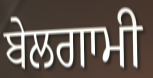
ਬੇਲਗਾਮੀ